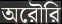
অরৌরি